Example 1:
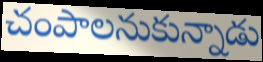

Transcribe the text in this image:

చంపాలనుకున్నాడు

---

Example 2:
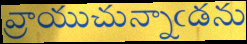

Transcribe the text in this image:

వ్రాయుచున్నాఁడను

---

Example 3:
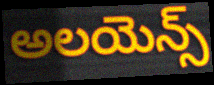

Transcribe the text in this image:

అలయెన్స్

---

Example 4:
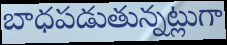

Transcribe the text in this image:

బాధపడుతున్నట్లుగా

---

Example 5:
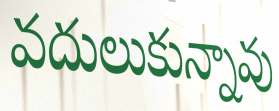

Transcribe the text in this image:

వదులుకున్నావు